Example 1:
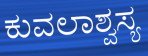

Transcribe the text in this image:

ಕುವಲಾಶ್ವಸ್ಯ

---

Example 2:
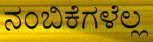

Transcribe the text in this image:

ನಂಬಿಕೆಗಳೆಲ್ಲ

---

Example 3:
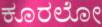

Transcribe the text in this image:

ಕೂರಲೋ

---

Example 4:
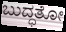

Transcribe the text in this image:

ಬುದ್ಧತೋ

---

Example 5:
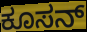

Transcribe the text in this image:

ಕೂಸನ್